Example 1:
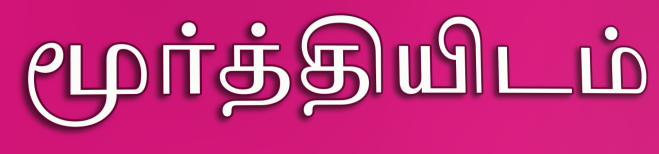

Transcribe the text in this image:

மூர்த்தியிடம்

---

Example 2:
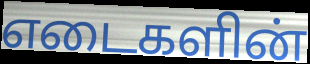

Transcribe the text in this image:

எடைகளின்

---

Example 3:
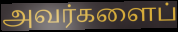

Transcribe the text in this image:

அவர்களைப்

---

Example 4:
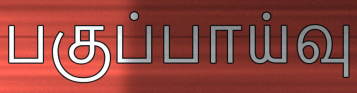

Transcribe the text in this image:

பகுப்பாய்வு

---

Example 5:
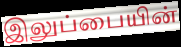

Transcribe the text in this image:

இலுப்பையின்